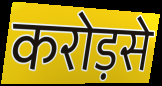
करोड़से